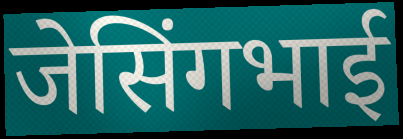
जेसिंगभाई